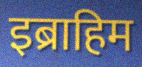
इब्राहिम